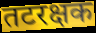
तटरक्षक